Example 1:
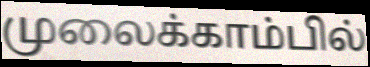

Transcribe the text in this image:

முலைக்காம்பில்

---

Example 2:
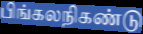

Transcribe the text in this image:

பிங்கலநிகண்டு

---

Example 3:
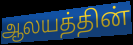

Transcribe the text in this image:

ஆலயத்தின்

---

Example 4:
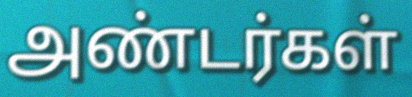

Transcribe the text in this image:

அண்டர்கள்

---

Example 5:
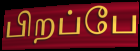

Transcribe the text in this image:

பிறப்பே